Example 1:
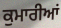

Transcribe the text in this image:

ਕੁਮਾਰੀਆਂ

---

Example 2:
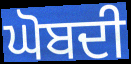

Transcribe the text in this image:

ਘੋਬਦੀ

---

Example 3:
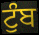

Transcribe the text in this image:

ਟੁੰਬ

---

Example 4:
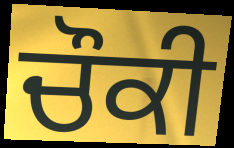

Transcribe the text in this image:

ਚੌਕੀ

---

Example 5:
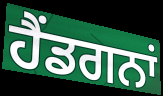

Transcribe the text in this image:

ਹੈਂਡਗਨਾਂ